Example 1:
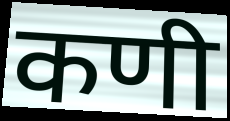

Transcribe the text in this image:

कणी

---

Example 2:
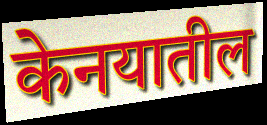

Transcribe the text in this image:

केनयातील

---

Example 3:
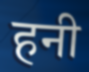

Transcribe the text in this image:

हनी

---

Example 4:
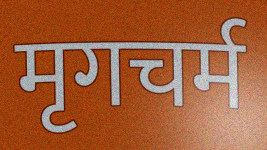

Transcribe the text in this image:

मृगचर्म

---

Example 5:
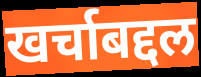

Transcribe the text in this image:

खर्चाबद्दल